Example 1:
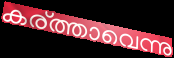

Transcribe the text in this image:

കര്ത്താവെന്നു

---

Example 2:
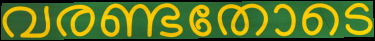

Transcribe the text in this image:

വരണ്ടതോടെ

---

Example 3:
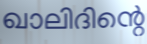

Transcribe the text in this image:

ഖാലിദിന്റെ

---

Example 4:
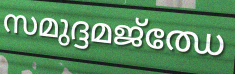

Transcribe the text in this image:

സമുദ്ദമജ്ഝേ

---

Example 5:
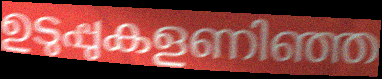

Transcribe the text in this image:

ഉടുപ്പുകളണിഞ്ഞ